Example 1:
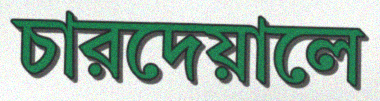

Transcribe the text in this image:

চারদেয়ালে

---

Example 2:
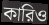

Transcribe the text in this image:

কারিও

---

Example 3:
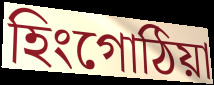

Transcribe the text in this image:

হিংগোঠিয়া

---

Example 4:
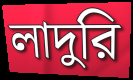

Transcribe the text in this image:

লাদুরি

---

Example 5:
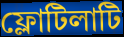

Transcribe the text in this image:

ফ্লোটিলাটি